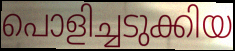
പൊളിച്ചടുക്കിയ